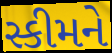
સ્કીમને